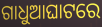
ଗାଧୁଆଘାଟରେ